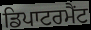
ਡਿਪਾਟਰਮੈਂਟ